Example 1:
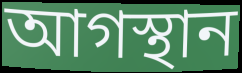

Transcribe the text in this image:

আগস্থান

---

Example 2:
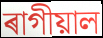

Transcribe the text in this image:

ৰাগীয়াল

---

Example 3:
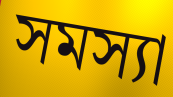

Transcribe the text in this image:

সমস্যা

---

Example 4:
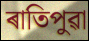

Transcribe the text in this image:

ৰাতিপুৱা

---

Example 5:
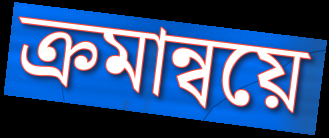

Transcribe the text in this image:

ক্ৰমান্বয়ে